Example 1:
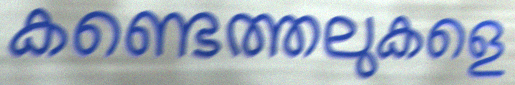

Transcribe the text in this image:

കണ്ടെത്തലുകളെ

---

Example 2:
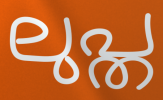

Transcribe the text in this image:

ലുപ്ത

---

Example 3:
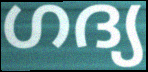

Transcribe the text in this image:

ഗദ്യ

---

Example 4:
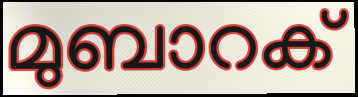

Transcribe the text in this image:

മുബാറക്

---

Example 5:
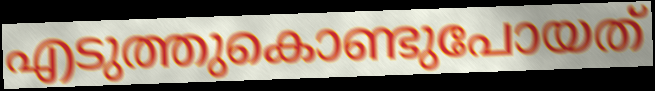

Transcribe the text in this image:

എടുത്തുകൊണ്ടുപോയത്